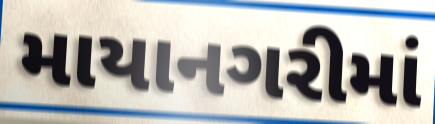
માયાનગરીમાં